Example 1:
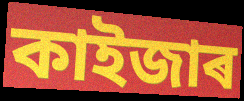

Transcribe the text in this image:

কাইজাৰ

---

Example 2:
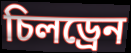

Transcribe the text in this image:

চিলড্ৰেন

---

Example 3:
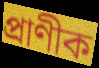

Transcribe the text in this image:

প্ৰাণীক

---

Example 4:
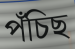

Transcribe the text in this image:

পঁচিছ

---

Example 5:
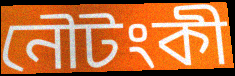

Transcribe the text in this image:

নৌটংকী